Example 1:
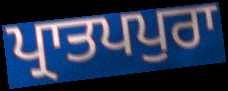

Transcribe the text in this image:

ਪ੍ਰਾਤਪਪੁਰਾ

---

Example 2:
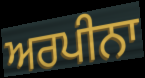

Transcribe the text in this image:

ਅਰਪੀਨਾ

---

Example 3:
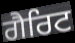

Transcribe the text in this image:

ਗੈਰਿਟ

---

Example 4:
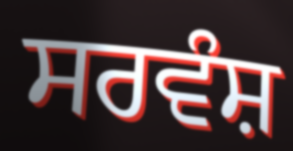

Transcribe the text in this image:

ਸਰਵੰਸ਼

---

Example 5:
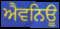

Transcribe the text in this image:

ਐਵਨਿਊ